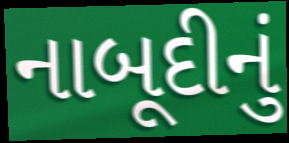
નાબૂદીનું